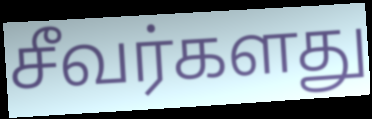
சீவர்களது